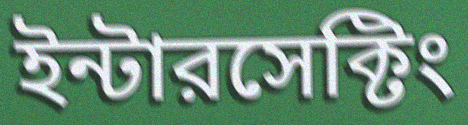
ইন্টারসেক্টিং